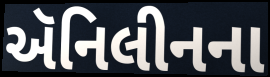
ઍનિલીનના